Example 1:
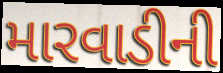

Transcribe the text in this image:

મારવાડીની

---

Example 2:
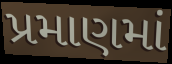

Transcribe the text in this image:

પ્રમાણમાં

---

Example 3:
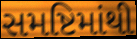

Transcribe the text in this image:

સમષ્ટિમાંથી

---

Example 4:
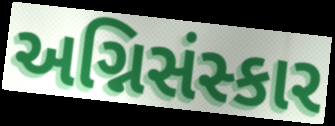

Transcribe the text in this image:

અગ્નિસંસ્કાર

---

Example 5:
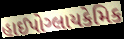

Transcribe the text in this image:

હાઈપોગ્લાયકેમિક